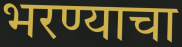
भरण्याचा